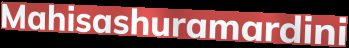
Mahisashuramardini